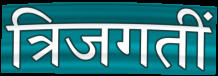
त्रिजगतीं